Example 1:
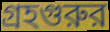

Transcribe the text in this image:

গ্রহগুরুর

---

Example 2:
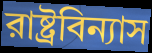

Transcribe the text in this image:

রাষ্ট্রবিন্যাস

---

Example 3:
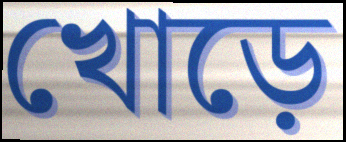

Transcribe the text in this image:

খোড়ে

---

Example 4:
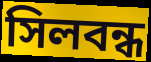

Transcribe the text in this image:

সিলবন্ধ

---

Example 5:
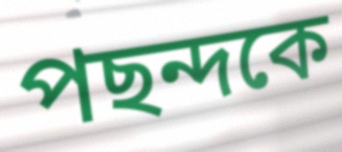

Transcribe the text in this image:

পছন্দকে